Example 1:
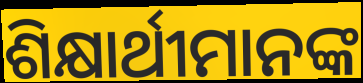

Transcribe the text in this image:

ଶିକ୍ଷାର୍ଥୀମାନଙ୍କ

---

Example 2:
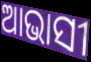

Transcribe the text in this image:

ଆଭାସୀ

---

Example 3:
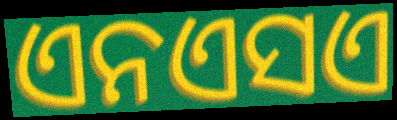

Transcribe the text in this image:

ଏନଏସଏ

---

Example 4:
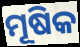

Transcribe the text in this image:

ମୂଷିକ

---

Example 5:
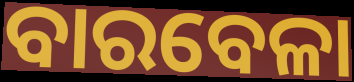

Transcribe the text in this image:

ବାରବେଳା